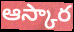
ఆస్కార